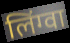
लिंग्वा